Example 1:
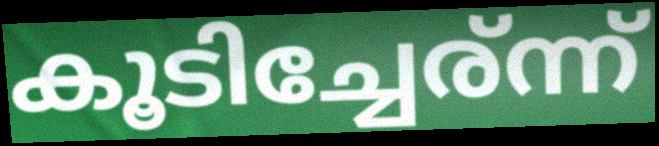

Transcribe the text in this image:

കൂടിച്ചേര്ന്ന്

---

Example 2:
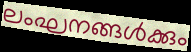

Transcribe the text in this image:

ലംഘനങ്ങൾക്കും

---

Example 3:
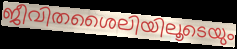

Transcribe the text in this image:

ജീവിതശൈലിയിലൂടെയും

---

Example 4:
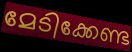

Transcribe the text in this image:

മേടിക്കേണ്ട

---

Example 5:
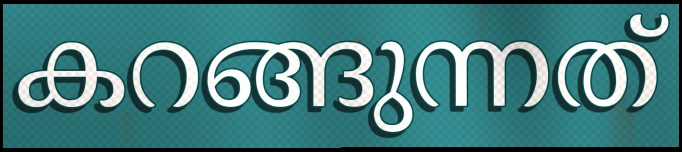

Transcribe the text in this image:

കറങ്ങുന്നത്